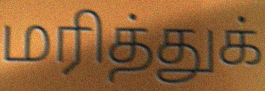
மரித்துக்